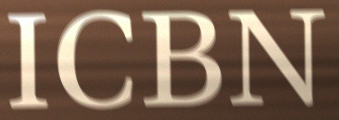
ICBN